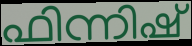
ഫിന്നിഷ്